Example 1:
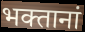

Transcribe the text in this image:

भक्तानां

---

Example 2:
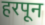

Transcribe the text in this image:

हरपून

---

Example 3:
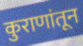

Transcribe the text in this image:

कुराणांतून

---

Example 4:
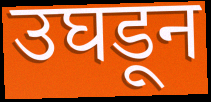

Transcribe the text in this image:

उघडून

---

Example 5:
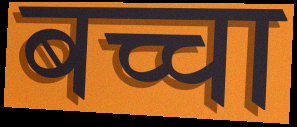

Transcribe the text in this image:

बच्चा